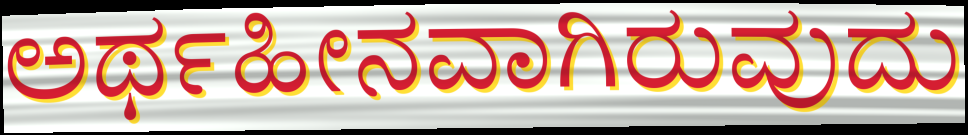
ಅರ್ಥಹೀನವಾಗಿರುವುದು